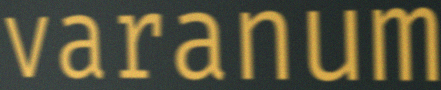
varanum